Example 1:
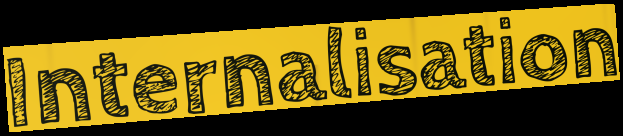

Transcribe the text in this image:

Internalisation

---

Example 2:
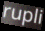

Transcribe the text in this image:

rupli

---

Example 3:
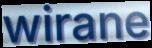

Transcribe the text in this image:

wirane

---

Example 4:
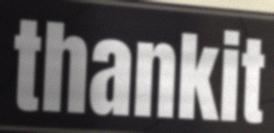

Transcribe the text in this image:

thankit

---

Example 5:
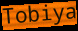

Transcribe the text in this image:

Tobiya